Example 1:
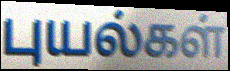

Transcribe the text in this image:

புயல்கள்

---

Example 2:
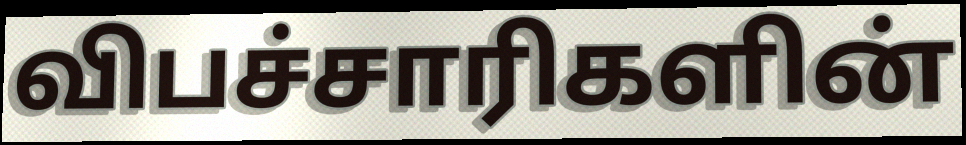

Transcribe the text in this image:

விபச்சாரிகளின்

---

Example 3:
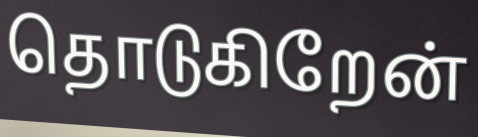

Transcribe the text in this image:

தொடுகிறேன்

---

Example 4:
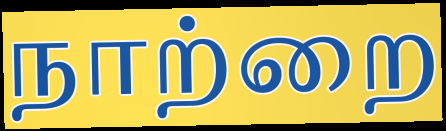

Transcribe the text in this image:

நாற்றை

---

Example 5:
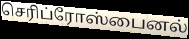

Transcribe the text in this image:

செரிப்ரோஸ்பைனல்